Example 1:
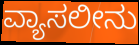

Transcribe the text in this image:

ವ್ಯಾಸಲೀನು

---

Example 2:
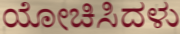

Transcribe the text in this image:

ಯೋಚಿಸಿದಳು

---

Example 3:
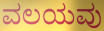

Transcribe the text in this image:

ವಲಯವು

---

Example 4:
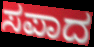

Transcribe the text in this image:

ಸಪಾದ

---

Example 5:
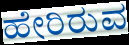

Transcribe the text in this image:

ಹೇರಿರುವ